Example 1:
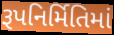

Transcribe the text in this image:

રૂપનિર્મિતિમાં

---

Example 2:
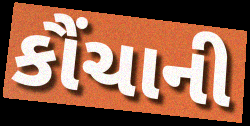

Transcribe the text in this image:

કૌંચાની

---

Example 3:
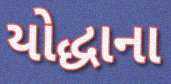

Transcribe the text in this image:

યોદ્ધાના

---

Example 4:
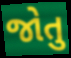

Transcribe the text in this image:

જોતુ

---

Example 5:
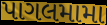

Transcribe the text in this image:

પાગલમામા